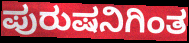
ಪುರುಷನಿಗಿಂತ